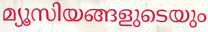
മ്യൂസിയങ്ങളുടെയും